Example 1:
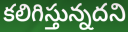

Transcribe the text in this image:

కలిగిస్తున్నదని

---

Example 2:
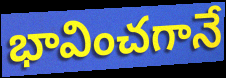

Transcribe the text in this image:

భావించగానే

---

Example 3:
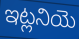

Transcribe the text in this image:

ఇట్లనియె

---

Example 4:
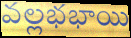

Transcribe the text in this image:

వల్లభభాయి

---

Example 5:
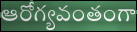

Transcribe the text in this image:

ఆరోగ్యవంతంగా